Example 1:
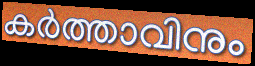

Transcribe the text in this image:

കർത്താവിനും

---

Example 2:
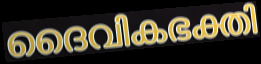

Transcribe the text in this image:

ദൈവികഭക്തി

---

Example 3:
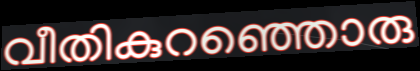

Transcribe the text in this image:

വീതികുറഞ്ഞൊരു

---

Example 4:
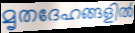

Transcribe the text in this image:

മൃതദേഹങ്ങളിൽ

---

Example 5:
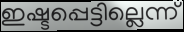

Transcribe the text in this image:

ഇഷ്ടപ്പെട്ടില്ലെന്ന്